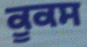
ਕੂਕਸ